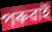
পৰুৱাই